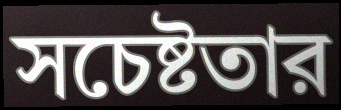
সচেষ্টতার